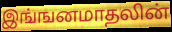
இங்ஙனமாதலின்